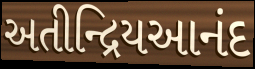
અતીન્દ્રિયઆનંદ